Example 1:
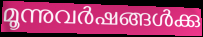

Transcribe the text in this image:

മൂന്നുവർഷങ്ങൾക്കു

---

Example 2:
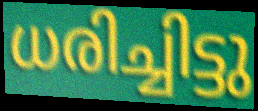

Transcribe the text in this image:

ധരിച്ചിട്ടു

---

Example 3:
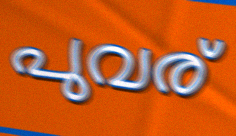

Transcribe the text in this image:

പുവര്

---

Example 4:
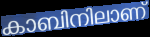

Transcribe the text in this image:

കാബിനിലാണ്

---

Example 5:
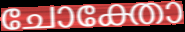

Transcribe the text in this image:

ചോക്തോ